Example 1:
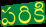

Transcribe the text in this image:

పరికి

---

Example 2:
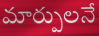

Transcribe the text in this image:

మార్పులనే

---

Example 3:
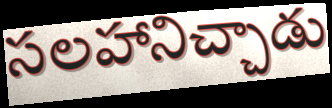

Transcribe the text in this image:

సలహానిచ్చాడు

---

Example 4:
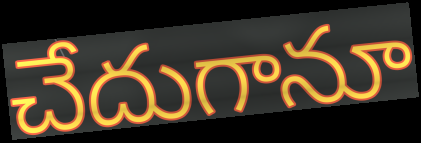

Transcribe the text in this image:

చేదుగానూ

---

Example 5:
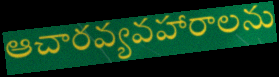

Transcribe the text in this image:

ఆచారవ్యవహారాలను